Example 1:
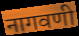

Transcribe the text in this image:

नागवणी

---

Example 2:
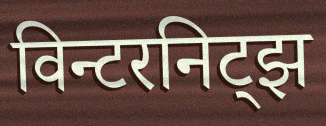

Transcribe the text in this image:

विन्टरनिट्झ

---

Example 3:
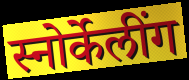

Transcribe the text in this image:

स्नोर्केलींग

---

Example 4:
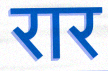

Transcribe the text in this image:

रार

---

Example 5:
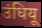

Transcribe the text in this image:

उंधियू